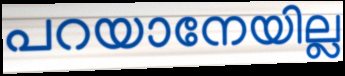
പറയാനേയില്ല